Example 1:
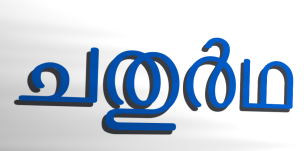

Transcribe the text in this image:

ചതുർഥ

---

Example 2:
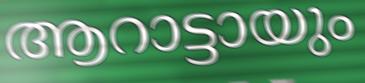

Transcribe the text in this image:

ആറാട്ടായും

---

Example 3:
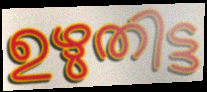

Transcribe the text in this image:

ഉഴുതിട്ട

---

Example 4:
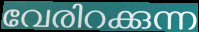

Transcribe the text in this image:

വേരിറക്കുന്ന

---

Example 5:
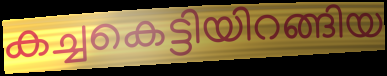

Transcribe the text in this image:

കച്ചകെട്ടിയിറങ്ങിയ